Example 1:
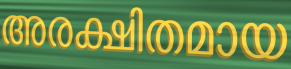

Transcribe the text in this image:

അരക്ഷിതമായ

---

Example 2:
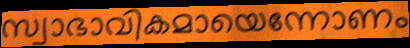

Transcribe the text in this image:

സ്വാഭാവികമായെന്നോണം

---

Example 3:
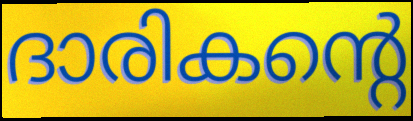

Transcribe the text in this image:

ദാരികന്റെ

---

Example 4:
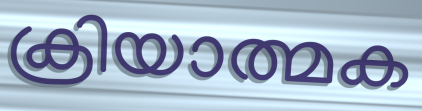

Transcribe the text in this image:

ക്രിയാത്മക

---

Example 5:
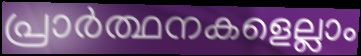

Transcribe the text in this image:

പ്രാർത്ഥനകളെല്ലാം